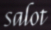
salot